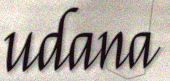
udana